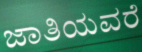
ಜಾತಿಯವರೆ